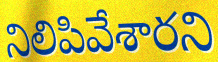
నిలిపివేశారని